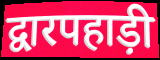
द्वारपहाड़ी